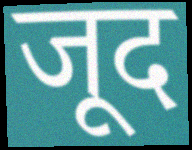
जूद